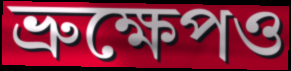
ভ্রুক্ষেপও